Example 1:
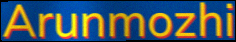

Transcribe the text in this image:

Arunmozhi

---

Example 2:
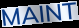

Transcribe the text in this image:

MAINT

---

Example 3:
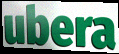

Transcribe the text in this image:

ubera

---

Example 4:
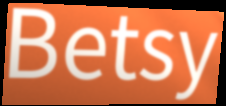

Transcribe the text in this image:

Betsy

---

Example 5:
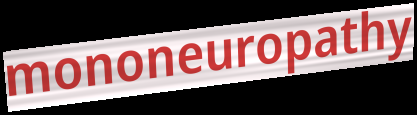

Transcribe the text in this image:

mononeuropathy